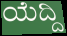
ಯೆದ್ದಿ